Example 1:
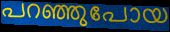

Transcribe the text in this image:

പറഞ്ഞുപോയ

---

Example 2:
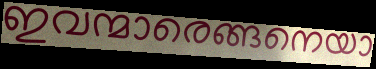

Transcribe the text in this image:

ഇവന്മാരെങ്ങനെയാ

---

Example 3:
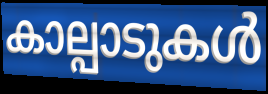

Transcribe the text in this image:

കാല്പാടുകൾ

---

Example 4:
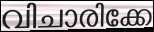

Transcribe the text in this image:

വിചാരിക്കേ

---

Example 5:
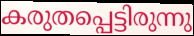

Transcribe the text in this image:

കരുതപ്പെട്ടിരുന്നു